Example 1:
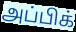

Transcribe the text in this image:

அப்பிக்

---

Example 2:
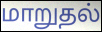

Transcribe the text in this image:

மாறுதல்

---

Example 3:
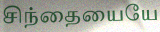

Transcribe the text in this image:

சிந்தையையே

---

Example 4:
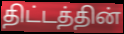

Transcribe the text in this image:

திட்டத்தின்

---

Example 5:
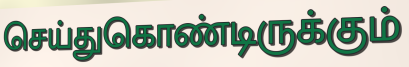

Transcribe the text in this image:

செய்துகொண்டிருக்கும்